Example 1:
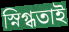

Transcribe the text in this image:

স্নিগ্ধতাই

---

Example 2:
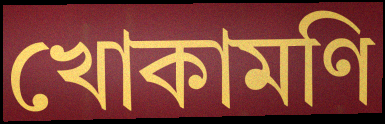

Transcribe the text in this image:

খোকামণি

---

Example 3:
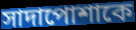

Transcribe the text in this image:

সাদাপোশাকে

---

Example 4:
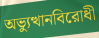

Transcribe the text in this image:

অভ্যুত্থানবিরোধী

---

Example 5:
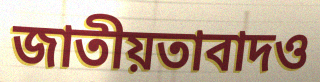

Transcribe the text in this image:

জাতীয়তাবাদও